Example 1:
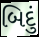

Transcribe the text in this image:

બિદું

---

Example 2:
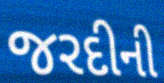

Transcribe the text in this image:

જરદીની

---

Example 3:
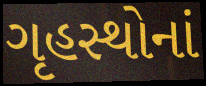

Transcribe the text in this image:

ગૃહસ્થોનાં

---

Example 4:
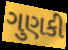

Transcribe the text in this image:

ગુણકી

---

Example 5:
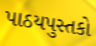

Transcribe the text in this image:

પાઠયપુસ્તકો